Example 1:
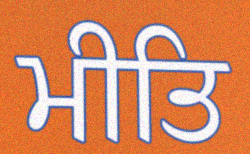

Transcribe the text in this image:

ਮੀਤਿ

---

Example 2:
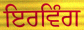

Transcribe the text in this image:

ਇਰਵਿੰਗ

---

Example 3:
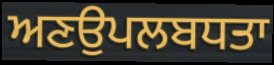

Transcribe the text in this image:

ਅਣਉਪਲਬਧਤਾ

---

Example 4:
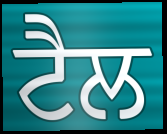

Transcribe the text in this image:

ਟੈਲ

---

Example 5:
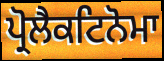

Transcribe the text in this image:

ਪ੍ਰੋਲੈਕਟਿਨੋਮਾ